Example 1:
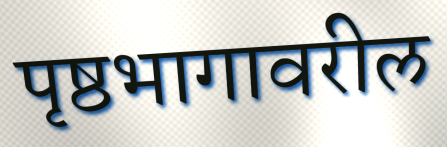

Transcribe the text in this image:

पृष्ठभागावरील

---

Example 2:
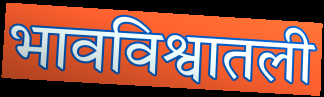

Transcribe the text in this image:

भावविश्वातली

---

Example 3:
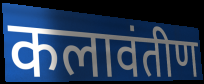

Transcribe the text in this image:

कलावंतीण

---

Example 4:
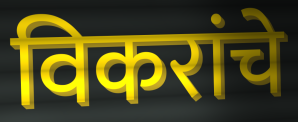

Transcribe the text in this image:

विकरांचे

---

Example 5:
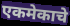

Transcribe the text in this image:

एकमेकाचे